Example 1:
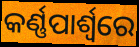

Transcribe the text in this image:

କର୍ଣ୍ଣପାର୍ଶ୍ୱରେ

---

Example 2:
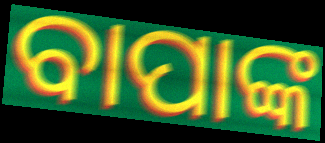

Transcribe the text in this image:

ବାପାଙ୍କ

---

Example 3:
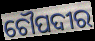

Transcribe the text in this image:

ଚୌପଦୀର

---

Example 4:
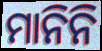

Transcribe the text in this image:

ମାନିନି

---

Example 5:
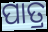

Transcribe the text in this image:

ପାତ୍ର